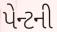
પેન્ટની